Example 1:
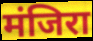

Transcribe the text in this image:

मंजिरा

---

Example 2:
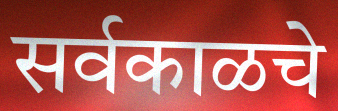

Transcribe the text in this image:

सर्वकाळचे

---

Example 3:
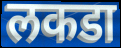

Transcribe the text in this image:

लकडा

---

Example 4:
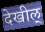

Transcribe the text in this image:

देखील्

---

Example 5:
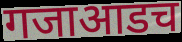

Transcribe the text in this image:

गजाआडच